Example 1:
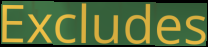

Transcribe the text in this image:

Excludes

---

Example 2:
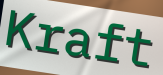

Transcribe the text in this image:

Kraft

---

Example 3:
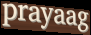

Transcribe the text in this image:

prayaag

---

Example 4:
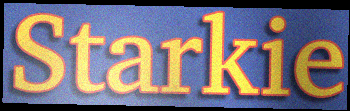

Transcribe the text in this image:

Starkie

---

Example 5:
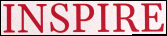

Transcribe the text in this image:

INSPIRE